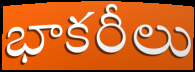
భాకరీలు